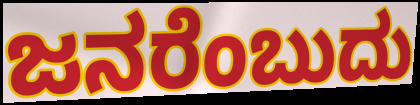
ಜನರೆಂಬುದು